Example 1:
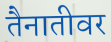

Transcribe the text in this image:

तैनातीवर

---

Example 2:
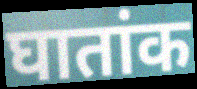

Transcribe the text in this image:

घातांक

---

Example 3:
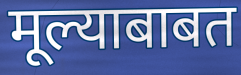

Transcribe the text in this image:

मूल्याबाबत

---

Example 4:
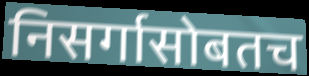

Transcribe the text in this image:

निसर्गासोबतच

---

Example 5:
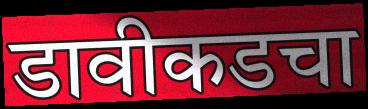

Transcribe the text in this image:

डावीकडचा